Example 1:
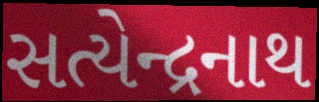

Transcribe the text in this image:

સત્યેન્દ્રનાથ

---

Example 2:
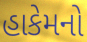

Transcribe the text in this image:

હાકેમનો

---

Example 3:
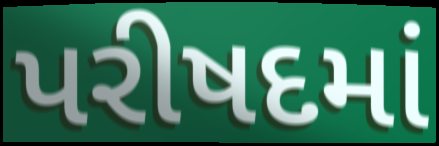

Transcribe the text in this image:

પરીષદમાં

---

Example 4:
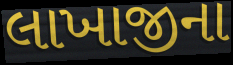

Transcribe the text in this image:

લાખાજીના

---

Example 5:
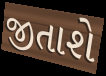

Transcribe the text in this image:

જીતાશે